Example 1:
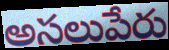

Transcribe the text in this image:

అసలుపేరు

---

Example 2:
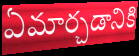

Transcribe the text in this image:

ఏమార్చడానికి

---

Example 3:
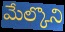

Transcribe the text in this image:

మేల్కొని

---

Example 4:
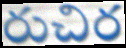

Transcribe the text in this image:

రుచిర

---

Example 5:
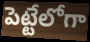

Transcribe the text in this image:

పెట్టేలోగా